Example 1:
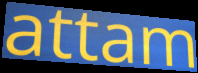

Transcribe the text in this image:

attam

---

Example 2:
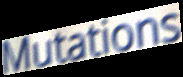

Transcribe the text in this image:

Mutations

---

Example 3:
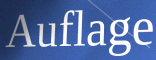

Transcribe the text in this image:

Auflage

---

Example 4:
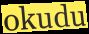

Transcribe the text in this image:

okudu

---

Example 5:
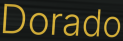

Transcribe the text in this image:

Dorado